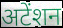
अटेंशन